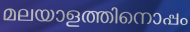
മലയാളത്തിനൊപ്പം